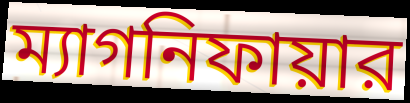
ম্যাগনিফায়ার